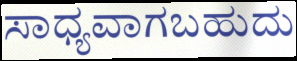
ಸಾಧ್ಯವಾಗಬಹುದು